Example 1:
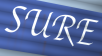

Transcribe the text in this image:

SURE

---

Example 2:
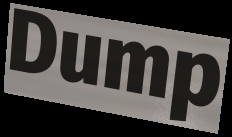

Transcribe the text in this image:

Dump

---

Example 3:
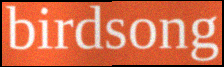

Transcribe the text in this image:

birdsong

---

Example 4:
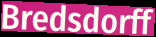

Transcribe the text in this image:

Bredsdorff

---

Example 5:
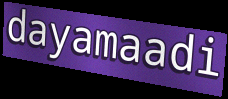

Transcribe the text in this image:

dayamaadi